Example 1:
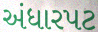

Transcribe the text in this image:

અંધારપટ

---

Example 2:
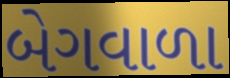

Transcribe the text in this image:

બેગવાળા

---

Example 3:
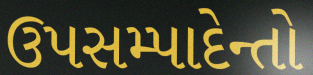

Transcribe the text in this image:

ઉપસમ્પાદેન્તો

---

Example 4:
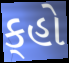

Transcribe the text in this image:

ક્‌હો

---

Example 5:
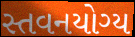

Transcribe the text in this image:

સ્તવનયોગ્ય